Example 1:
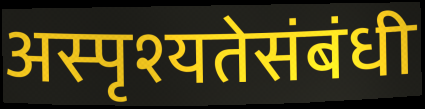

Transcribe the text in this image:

अस्पृश्यतेसंबंधी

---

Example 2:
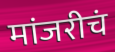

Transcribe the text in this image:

मांजरीचं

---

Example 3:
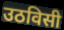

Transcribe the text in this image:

उठविसी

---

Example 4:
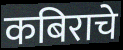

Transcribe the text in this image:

कबिराचे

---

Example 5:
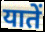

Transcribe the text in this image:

यातें